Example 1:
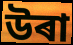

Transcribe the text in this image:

উৰা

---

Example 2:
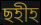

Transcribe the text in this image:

ছহীহ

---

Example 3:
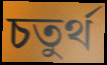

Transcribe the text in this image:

চতুৰ্থ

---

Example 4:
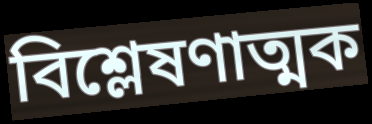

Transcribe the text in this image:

বিশ্লেষণাত্মক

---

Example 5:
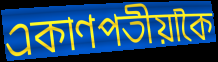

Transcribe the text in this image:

একাণপতীয়াকৈ